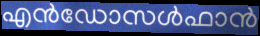
എൻഡോസൾഫാൻ